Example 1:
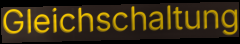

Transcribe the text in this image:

Gleichschaltung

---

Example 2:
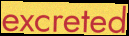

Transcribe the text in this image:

excreted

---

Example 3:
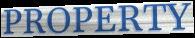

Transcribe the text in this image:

PROPERTY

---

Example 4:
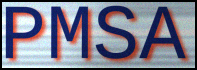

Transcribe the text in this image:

PMSA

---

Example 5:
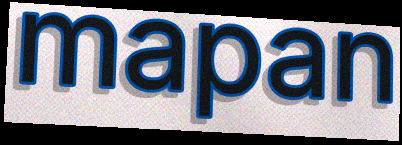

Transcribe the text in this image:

mapan